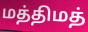
மத்திமத்